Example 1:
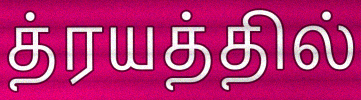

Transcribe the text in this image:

த்ரயத்தில்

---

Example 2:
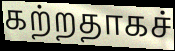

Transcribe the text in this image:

கற்றதாகச்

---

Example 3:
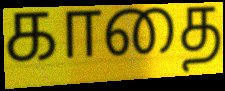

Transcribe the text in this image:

காதை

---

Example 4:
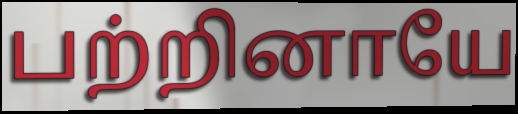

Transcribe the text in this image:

பற்றினாயே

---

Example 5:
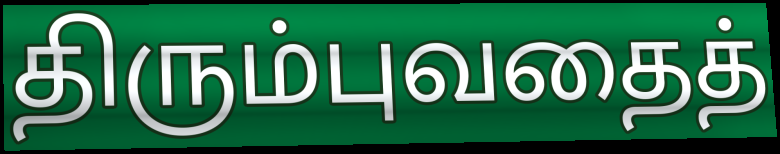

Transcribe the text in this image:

திரும்புவதைத்